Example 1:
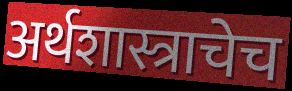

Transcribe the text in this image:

अर्थशास्त्राचेच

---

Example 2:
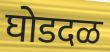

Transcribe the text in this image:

घोडदळ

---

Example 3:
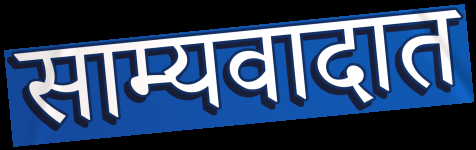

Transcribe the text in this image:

साम्यवादात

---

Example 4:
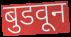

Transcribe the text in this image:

बुडवून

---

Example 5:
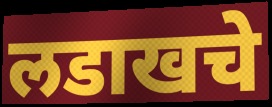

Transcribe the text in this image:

लडाखचे